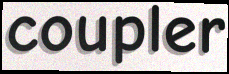
coupler